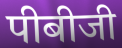
पीबीजी